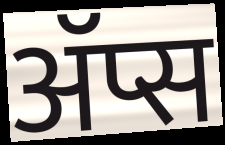
ॲप्स